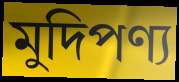
মুদিপণ্য